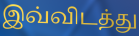
இவ்விடத்து